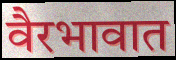
वैरभावात